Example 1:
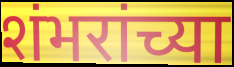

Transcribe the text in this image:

शंभरांच्या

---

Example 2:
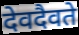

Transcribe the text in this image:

देवदैवते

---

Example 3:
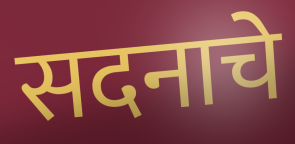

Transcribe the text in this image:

सदनाचे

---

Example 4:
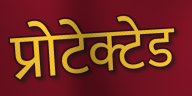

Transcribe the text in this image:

प्रोटेक्टेड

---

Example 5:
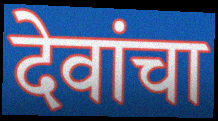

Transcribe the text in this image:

देवांचा